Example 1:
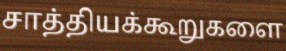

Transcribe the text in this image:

சாத்தியக்கூறுகளை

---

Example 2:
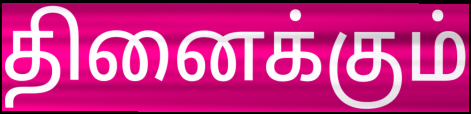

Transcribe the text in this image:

தினைக்கும்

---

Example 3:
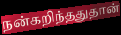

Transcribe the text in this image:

நன்கறிந்ததுதான்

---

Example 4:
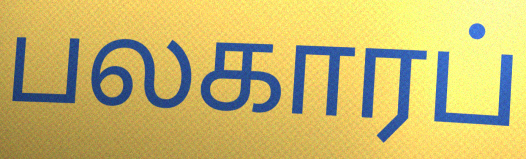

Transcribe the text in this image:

பலகாரப்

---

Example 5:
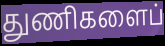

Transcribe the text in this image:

துணிகளைப்